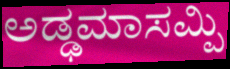
ಅಡ್ಢಮಾಸಮ್ಪಿ